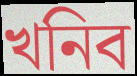
খনিব